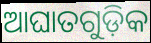
ଆଘାତଗୁଡ଼ିକ